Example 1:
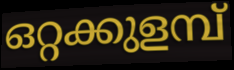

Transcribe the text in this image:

ഒറ്റക്കുളമ്പ്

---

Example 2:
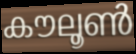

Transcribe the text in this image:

കൗലൂൺ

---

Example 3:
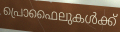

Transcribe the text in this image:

പ്രൊഫൈലുകൾക്ക്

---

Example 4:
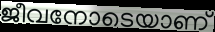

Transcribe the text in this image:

ജീവനോടെയാണ്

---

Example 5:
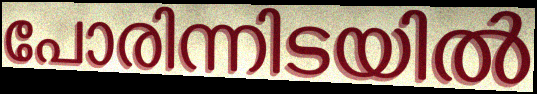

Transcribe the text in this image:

പോരിന്നിടയിൽ